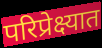
परिप्रेक्ष्यात